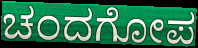
ಚಂದಗೋಪ